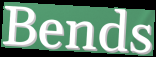
Bends